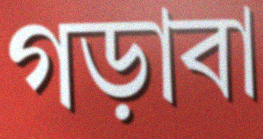
গড়াবা